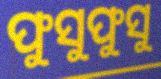
ଫୁସୁଫୁସୁ